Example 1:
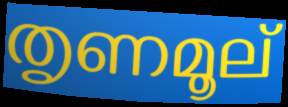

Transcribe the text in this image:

തൃണമൂല്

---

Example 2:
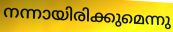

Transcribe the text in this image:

നന്നായിരിക്കുമെന്നു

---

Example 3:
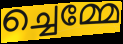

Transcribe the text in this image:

ച്ചെമ്മേ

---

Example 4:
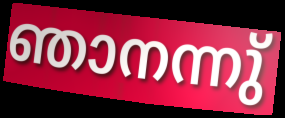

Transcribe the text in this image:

ഞാനന്നു്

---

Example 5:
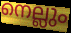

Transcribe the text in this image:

നെല്ലും